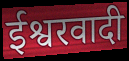
ईश्वरवादी